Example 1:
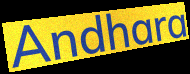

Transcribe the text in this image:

Andhara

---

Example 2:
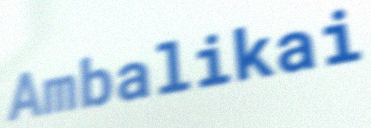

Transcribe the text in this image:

Ambalikai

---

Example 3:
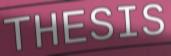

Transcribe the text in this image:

THESIS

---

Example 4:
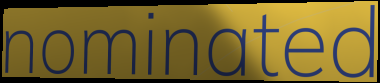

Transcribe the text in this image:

nominated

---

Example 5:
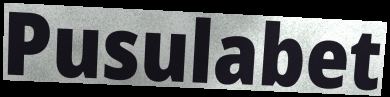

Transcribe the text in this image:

Pusulabet